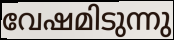
വേഷമിടുന്നു